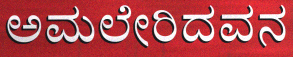
ಅಮಲೇರಿದವನ